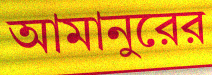
আমানুরের